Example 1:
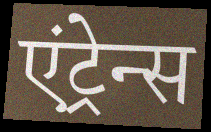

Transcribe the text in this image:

एंट्रेन्स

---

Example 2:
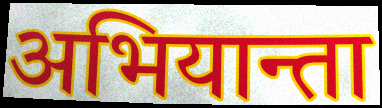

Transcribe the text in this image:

अभियान्ता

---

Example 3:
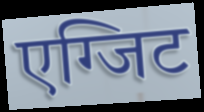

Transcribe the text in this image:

एग्जिट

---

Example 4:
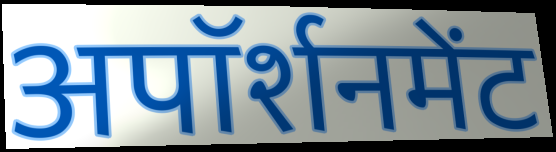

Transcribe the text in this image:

अपॉर्शनमेंट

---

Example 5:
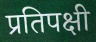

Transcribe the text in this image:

प्रतिपक्षी